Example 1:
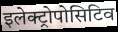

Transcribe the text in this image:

इलेक्ट्रोपोसिटिव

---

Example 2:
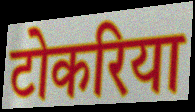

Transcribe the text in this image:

टोकरिया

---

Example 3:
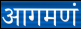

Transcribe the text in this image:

आगमणं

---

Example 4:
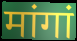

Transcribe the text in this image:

मांगां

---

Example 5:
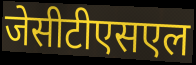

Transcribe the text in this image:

जेसीटीएसएल